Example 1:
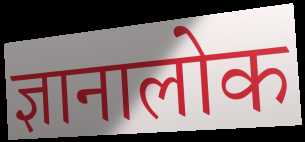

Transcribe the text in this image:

ज्ञानालोक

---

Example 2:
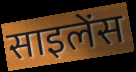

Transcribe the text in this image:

साइलेंस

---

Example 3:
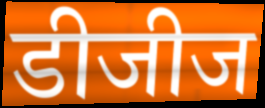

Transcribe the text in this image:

डीजीज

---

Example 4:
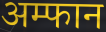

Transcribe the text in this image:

अम्फान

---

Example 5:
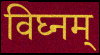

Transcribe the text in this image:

विघ्नम्